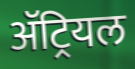
ॲट्रियल